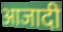
आजादी